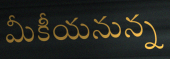
మీకీయనున్న